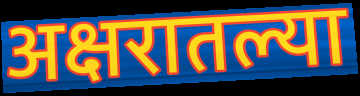
अक्षरातल्या